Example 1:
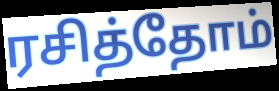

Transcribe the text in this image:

ரசித்தோம்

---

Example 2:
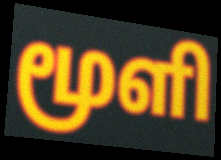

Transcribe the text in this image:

மூளி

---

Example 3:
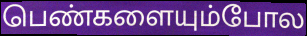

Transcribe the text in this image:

பெண்களையும்போல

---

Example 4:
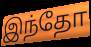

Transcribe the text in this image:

இந்தோ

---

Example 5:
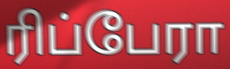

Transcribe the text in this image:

ரிப்பேரா